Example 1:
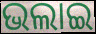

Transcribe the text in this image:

ଭଲାଇ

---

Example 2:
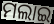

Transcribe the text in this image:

ମଲାଇ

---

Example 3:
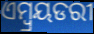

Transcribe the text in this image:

ଏମ୍ବ୍ରୟଡରୀ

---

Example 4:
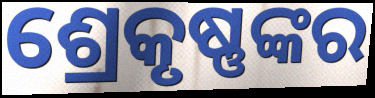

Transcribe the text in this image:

ଶ୍ରେକୃଷ୍ଣଙ୍କର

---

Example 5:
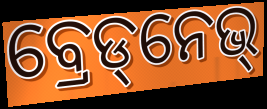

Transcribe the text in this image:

ବ୍ରେଡ୍‌ନେଭ୍